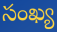
సంఖ్య